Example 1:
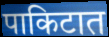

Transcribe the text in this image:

पाकिटात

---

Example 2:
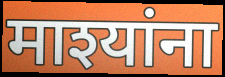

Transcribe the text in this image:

माश्यांना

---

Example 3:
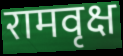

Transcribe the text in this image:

रामवृक्ष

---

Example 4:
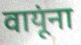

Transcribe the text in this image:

वायूंना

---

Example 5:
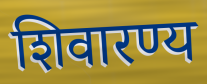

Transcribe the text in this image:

शिवारण्य